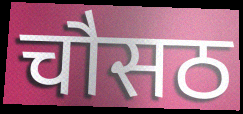
चौसठ